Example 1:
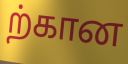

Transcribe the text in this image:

ற்கான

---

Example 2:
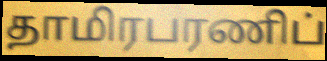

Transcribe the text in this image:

தாமிரபரணிப்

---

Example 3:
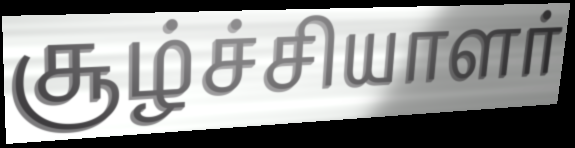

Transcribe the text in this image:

சூழ்ச்சியாளர்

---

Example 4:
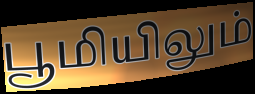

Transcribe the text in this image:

பூமியிலும்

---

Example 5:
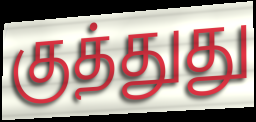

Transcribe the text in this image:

குத்துது